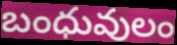
బంధువులం